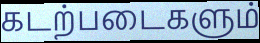
கடற்படைகளும்